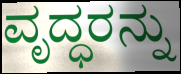
ವೃದ್ಧರನ್ನು